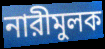
নারীমুলক